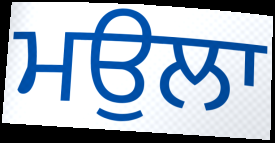
ਮਉਲਾ